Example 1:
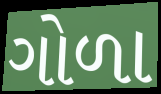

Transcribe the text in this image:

ગોળા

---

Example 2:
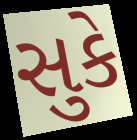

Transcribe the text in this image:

સુકે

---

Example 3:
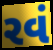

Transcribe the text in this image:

રવં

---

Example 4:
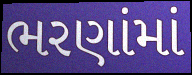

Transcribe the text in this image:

ભરણાંમાં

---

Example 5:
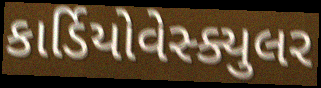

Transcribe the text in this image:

કાર્ડિયોવેસ્ક્યુલર